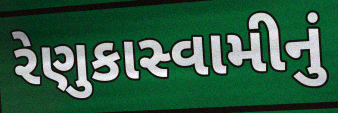
રેણુકાસ્વામીનું